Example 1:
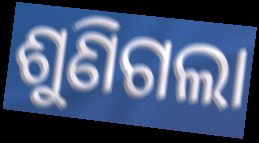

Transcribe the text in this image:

ଶୁଣିଗଲା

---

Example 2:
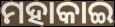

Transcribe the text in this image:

ମହାକାଇ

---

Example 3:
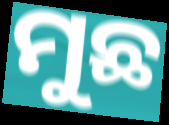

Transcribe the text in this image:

ମୁଛ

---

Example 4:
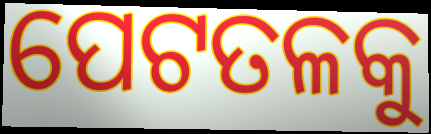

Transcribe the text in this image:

ପେଟତଳକୁ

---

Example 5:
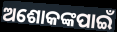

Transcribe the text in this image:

ଅଶୋକଙ୍କପାଇଁ